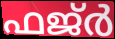
ഫജ്ർ